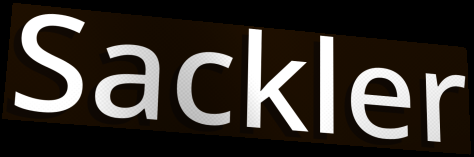
Sackler